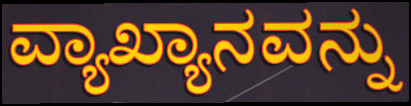
ವ್ಯಾಖ್ಯಾನವನ್ನು